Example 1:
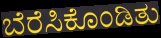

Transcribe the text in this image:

ಬೆರೆಸಿಕೊಂಡಿತು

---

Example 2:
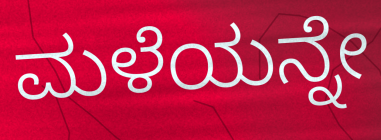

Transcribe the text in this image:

ಮಳೆಯನ್ನೇ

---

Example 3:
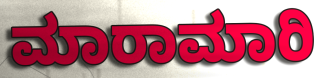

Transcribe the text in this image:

ಮಾರಾಮಾರಿ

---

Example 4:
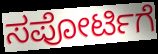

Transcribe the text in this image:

ಸಪೋರ್ಟಿಗೆ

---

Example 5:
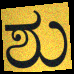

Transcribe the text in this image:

ಶು